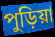
পুড়িয়া